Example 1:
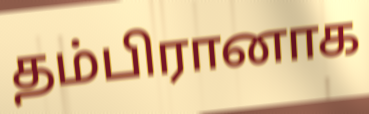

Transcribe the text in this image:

தம்பிரானாக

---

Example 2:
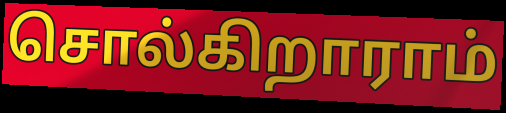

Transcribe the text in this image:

சொல்கிறாராம்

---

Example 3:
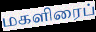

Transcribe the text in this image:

மகளிரைப்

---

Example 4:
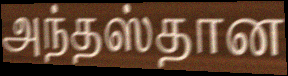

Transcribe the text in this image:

அந்தஸ்தான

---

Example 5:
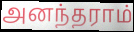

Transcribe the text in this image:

அனந்தராம்